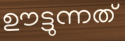
ഊട്ടുന്നത്